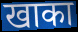
खाका